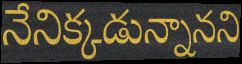
నేనిక్కడున్నానని